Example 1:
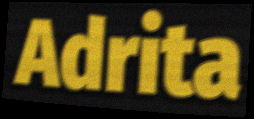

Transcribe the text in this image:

Adrita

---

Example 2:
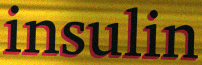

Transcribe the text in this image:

insulin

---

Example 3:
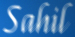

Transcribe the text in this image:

Sahil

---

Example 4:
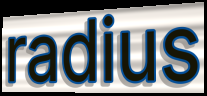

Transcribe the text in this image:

radius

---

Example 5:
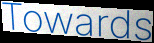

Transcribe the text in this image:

Towards